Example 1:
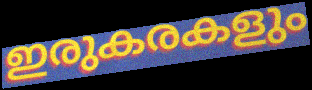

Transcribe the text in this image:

ഇരുകരകളും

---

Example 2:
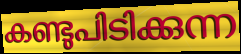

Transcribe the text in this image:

കണ്ടുപിടിക്കുന്ന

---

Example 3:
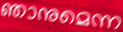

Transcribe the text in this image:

ഞാനുമെന്ന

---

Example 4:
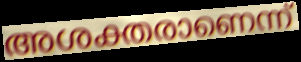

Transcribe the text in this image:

അശക്തരാണെന്ന്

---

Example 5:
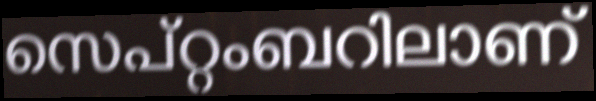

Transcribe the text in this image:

സെപ്റ്റംബറിലാണ്